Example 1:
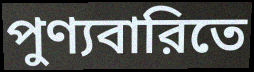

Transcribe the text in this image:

পুণ্যবারিতে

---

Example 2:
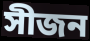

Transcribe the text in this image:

সীজন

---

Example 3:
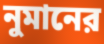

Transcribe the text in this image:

নুমানের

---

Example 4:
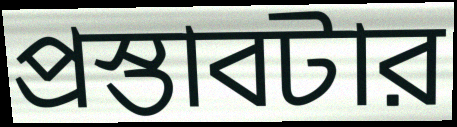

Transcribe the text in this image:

প্রস্তাবটার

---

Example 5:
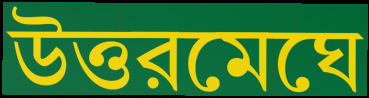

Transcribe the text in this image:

উত্তরমেঘে